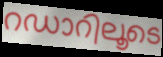
റഡാറിലൂടെ